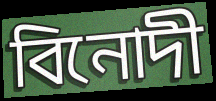
বিনোদী